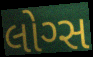
લોગ્સ